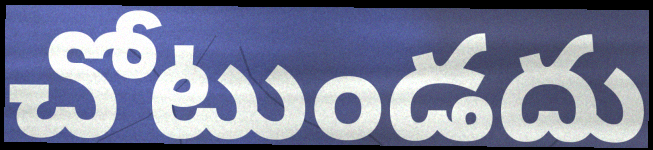
చోటుండదు